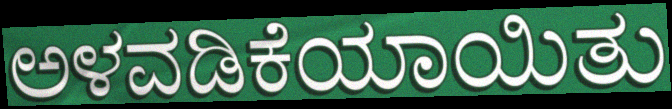
ಅಳವಡಿಕೆಯಾಯಿತು